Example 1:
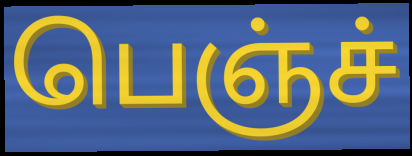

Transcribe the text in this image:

பெஞ்ச்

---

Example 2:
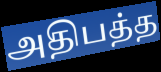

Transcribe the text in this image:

அதிபத்த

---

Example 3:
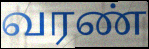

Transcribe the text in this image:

வரண்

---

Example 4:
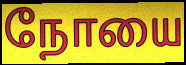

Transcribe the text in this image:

நோயை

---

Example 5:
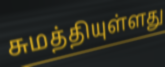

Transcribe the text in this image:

சுமத்தியுள்ளது